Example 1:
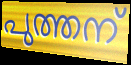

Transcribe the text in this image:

പുത്തന്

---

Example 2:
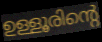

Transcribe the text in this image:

ഉള്ളൂരിന്റെ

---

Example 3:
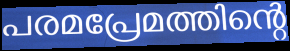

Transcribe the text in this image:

പരമപ്രേമത്തിന്റെ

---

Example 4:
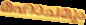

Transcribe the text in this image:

മഹാചമൂം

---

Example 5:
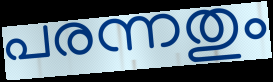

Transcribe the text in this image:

പരന്നതും